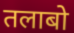
तलाबो